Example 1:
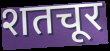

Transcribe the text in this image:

शतचूर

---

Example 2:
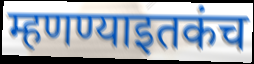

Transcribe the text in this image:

म्हणण्याइतकंच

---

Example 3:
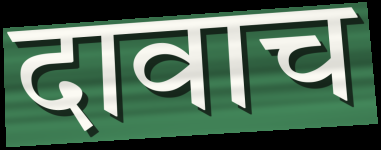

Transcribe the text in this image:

दावाच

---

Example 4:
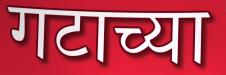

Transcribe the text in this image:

गटाच्या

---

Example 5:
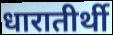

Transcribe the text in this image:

धारातीर्थी